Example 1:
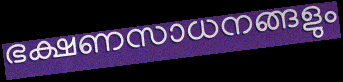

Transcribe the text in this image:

ഭക്ഷണസാധനങ്ങളും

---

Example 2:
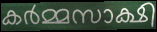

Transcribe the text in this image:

കർമ്മസാക്ഷി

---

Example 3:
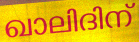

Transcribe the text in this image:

ഖാലിദിന്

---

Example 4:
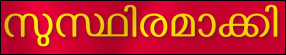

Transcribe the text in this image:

സുസ്ഥിരമാക്കി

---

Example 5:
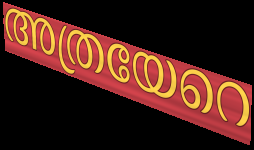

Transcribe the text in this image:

അത്രയേറെ